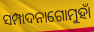
ସମ୍ପାଦନାଗୋମୁହାଁ